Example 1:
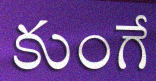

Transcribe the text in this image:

కుంగే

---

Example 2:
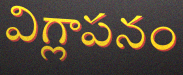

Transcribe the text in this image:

విగ్లాపనం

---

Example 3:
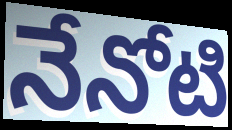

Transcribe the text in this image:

నేనోటి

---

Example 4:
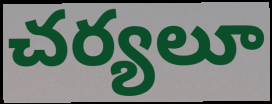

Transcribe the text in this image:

చర్యలూ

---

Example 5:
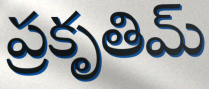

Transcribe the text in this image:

ప్రకృతిమ్